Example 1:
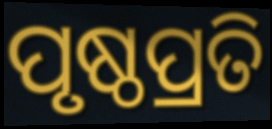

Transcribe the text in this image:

ପୃଷ୍ଠପ୍ରତି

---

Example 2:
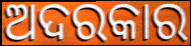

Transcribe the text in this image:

ଅଦରକାର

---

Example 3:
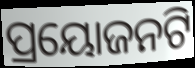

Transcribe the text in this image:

ପ୍ରୟୋଜନଟି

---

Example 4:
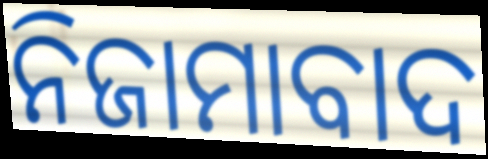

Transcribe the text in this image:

ନିଜାମାବାଦ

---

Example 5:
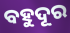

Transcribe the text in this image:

ବହୁଦୂର